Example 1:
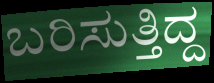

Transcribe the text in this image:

ಬರಿಸುತ್ತಿದ್ದ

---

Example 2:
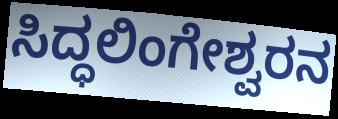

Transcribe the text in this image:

ಸಿದ್ಧಲಿಂಗೇಶ್ವರನ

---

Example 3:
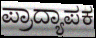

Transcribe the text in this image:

ಪ್ರಾದ್ಯಾಪಕ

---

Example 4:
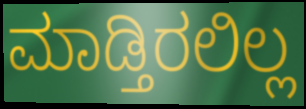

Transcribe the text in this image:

ಮಾಡ್ತಿರಲಿಲ್ಲ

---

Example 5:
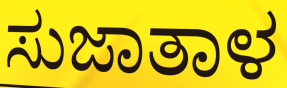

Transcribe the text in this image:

ಸುಜಾತಾಳ